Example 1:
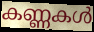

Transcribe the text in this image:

കണ്ണകൾ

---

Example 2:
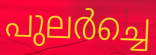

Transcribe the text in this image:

പുലർച്ചെ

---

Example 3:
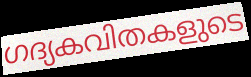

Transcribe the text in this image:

ഗദ്യകവിതകളുടെ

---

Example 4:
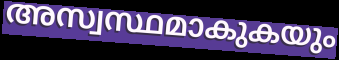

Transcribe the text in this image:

അസ്വസ്ഥമാകുകയും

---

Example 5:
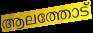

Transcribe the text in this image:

ആലത്തോട്